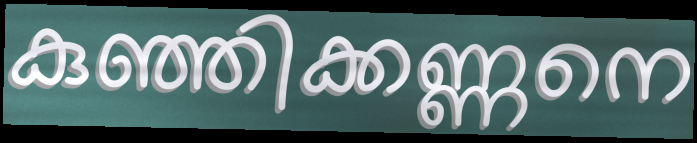
കുഞ്ഞിക്കണ്ണനെ